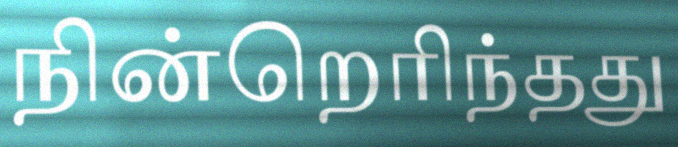
நின்றெரிந்தது